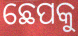
ଛେପକୁ